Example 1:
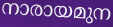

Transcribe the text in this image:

നാരായമുന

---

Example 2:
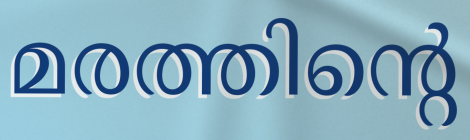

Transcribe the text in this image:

മരത്തിന്റെ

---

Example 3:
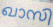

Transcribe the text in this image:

ഖാസി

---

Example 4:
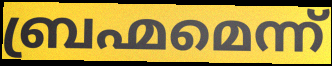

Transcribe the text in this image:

ബ്രഹ്മമെന്ന്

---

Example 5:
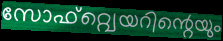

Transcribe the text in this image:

സോഫ്റ്റ്വെയറിന്റെയും